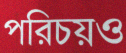
পরিচয়ও